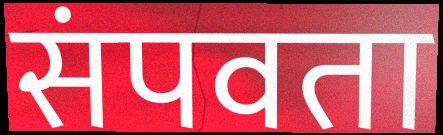
संपवता